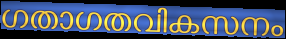
ഗതാഗതവികസനം